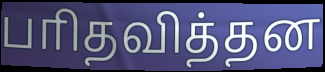
பரிதவித்தன